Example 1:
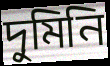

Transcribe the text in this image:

দুমিনি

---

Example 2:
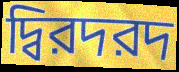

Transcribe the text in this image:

দ্বিরদরদ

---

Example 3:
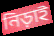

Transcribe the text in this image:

নিড়াই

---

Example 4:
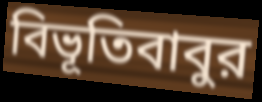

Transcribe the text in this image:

বিভূতিবাবুর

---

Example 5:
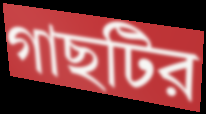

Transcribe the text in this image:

গাছটির